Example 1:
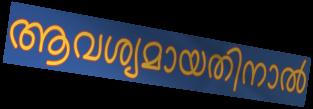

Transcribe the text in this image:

ആവശ്യമായതിനാൽ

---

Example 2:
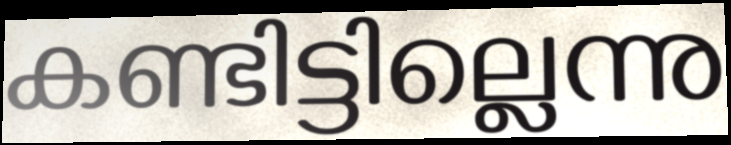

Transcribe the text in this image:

കണ്ടിട്ടില്ലെന്നു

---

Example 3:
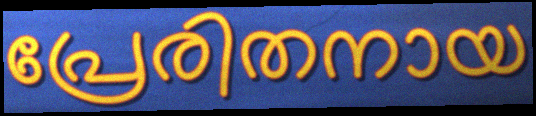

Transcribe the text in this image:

പ്രേരിതനായ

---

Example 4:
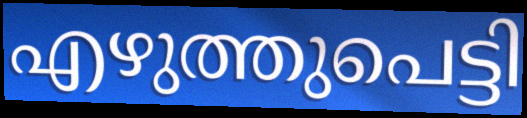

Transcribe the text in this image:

എഴുത്തുപെട്ടി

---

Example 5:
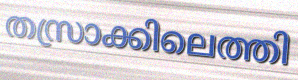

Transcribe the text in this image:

തസ്രാക്കിലെത്തി